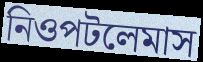
নিওপটলেমাস